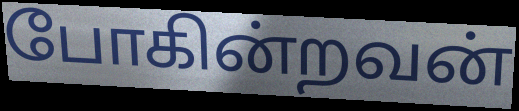
போகின்றவன்